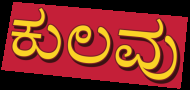
ಕುಲವು